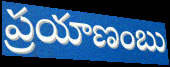
ప్రయాణంబు